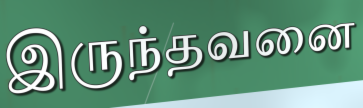
இருந்தவனை